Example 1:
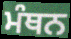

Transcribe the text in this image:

ਮੰਥਨ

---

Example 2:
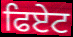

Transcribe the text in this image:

ਫਿਏਟ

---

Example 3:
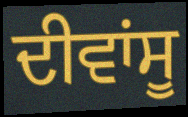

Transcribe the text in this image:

ਦੀਵਾਂਸੂ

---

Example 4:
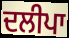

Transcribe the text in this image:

ਦਲੀਪਾ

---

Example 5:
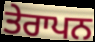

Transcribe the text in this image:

ਤੇਰਾਪਨ